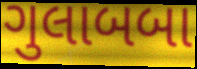
ગુલાબબા